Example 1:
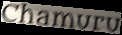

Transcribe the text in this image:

Chamuru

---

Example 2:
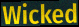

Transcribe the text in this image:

Wicked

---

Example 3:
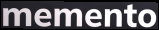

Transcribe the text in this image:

memento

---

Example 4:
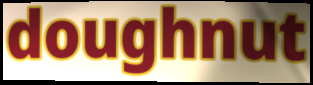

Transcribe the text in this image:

doughnut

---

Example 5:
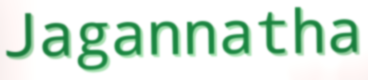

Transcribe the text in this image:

Jagannatha